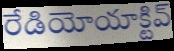
రేడియోయాక్టివ్